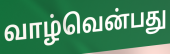
வாழ்வென்பது